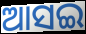
ଆସଇ